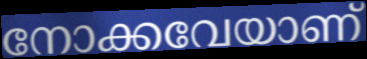
നോക്കവേയാണ്